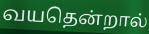
வயதென்றால்